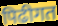
पिढीगत